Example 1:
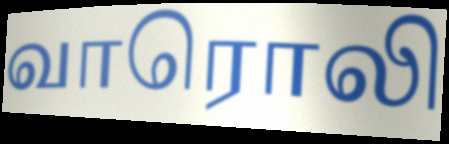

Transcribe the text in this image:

வாரொலி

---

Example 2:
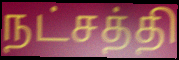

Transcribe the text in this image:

நட்சத்தி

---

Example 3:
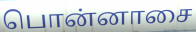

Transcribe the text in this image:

பொன்னாசை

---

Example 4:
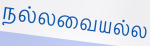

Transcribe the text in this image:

நல்லவையல்ல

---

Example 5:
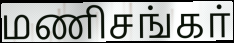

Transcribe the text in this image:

மணிசங்கர்